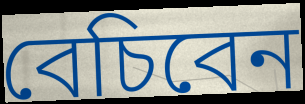
বেচিবেন